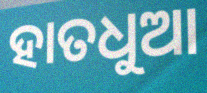
ହାତଧୁଆ